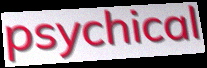
psychical